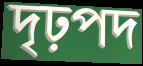
দৃঢ়পদ